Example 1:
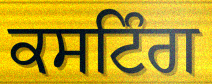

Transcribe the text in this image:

ਕਸਟਿੰਗ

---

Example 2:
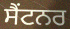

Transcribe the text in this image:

ਸੈਂਟਨਰ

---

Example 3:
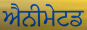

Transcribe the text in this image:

ਐਨੀਮੇਟਡ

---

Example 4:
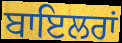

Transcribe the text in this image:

ਬਾਇਲਰਾਂ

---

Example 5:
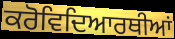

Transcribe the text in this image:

ਕਰੋਵਿਦਿਆਰਥੀਆਂ